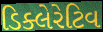
ડિક્લેરેટિવ